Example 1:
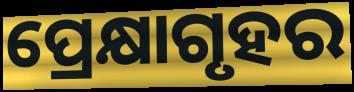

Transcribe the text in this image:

ପ୍ରେକ୍ଷାଗୃହର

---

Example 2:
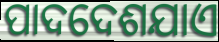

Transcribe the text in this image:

ପାଦଦେଶଯାଏ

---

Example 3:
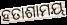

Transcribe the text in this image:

ହତାଶାମୟ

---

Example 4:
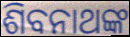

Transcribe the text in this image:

ଶିବନାଥଙ୍କ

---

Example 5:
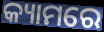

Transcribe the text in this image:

କ୍ୟାମରେ